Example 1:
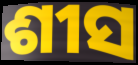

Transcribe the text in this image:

ଶୀସ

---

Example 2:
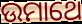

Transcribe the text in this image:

ଉମାଥେ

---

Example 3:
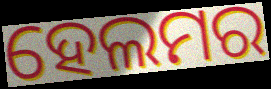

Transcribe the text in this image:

ହେଲମର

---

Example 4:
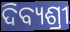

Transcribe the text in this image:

ଦିବ୍ୟଶ୍ରୀ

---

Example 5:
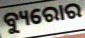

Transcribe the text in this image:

ବ୍ୟୁରୋର